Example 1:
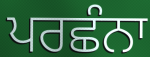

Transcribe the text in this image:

ਪਰਛੰਨਾ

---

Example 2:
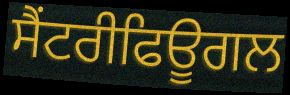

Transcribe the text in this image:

ਸੈਂਟਰੀਫਿਊਗਲ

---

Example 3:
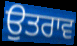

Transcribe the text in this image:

ਉਤਰਾਵ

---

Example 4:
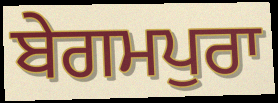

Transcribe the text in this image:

ਬੇਗਮਪੁਰਾ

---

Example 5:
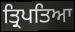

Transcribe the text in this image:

ਤ੍ਰਿਪਤਿਆ